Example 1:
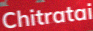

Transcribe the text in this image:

Chitratai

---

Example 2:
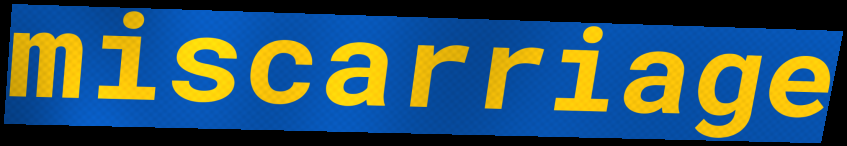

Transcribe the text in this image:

miscarriage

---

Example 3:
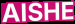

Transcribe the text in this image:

AISHE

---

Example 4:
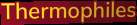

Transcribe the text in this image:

Thermophiles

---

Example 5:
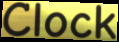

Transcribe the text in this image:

Clock